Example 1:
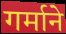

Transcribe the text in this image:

गर्माने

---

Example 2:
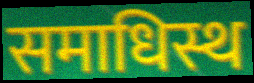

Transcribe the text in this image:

समाधिस्थ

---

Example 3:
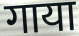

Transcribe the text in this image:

गाया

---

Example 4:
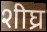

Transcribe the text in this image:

शीघ्र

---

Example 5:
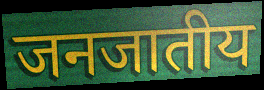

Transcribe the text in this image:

जनजातीय